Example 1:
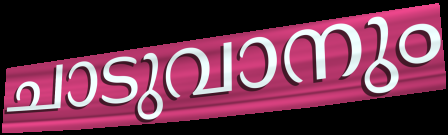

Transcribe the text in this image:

ചാടുവാനും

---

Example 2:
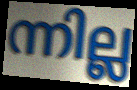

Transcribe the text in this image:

ന്നില്ല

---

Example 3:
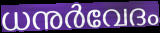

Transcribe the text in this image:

ധനുർവേദം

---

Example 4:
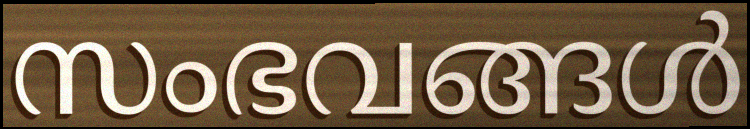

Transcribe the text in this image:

സംഭവങ്ങൾ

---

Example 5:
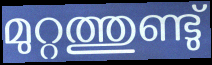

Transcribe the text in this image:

മുറ്റത്തുണ്ടു്